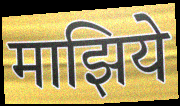
माझिये